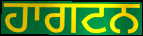
ਹਾਗਟਨ